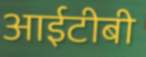
आईटीबी